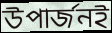
উপার্জনই